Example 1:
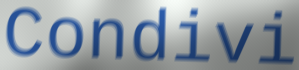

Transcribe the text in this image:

Condivi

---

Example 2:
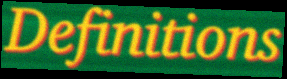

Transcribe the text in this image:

Definitions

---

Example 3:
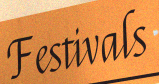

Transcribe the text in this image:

Festivals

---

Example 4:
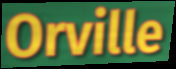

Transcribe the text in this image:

Orville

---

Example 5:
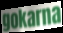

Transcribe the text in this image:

gokarna